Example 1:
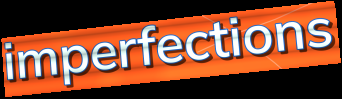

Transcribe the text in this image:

imperfections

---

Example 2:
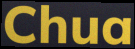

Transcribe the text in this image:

Chua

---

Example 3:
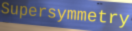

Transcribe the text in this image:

Supersymmetry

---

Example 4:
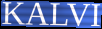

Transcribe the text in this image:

KALVI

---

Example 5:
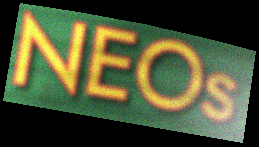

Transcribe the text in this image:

NEOs